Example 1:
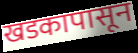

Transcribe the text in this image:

खडकापासून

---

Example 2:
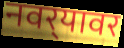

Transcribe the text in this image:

नवर्‍यावर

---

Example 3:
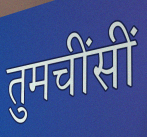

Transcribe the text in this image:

तुमचींसीं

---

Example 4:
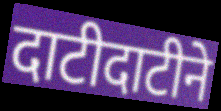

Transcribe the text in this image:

दाटीदाटीने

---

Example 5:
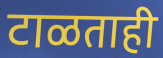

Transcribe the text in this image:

टाळताही